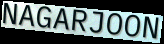
NAGARJOON